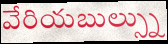
వేరియబుల్స్ను